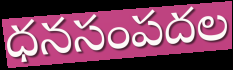
ధనసంపదల